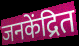
जनकेंद्रित